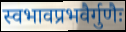
स्वभावप्रभवैर्गुणैः